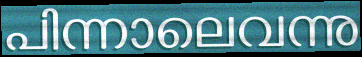
പിന്നാലെവന്നു